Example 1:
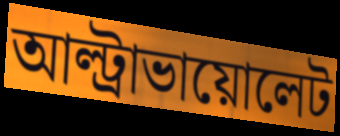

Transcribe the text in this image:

আল্ট্রাভায়োলেট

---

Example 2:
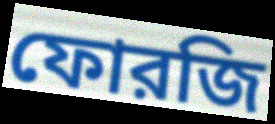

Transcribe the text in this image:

ফোরজি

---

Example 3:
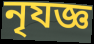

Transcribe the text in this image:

নৃযজ্ঞ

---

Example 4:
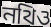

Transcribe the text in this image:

নথিও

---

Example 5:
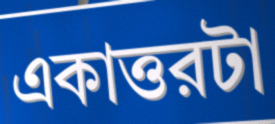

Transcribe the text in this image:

একাত্তরটা